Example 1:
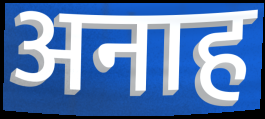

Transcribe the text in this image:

अनाह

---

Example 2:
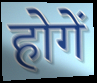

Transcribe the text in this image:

होगें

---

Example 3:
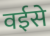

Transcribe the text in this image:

वईसे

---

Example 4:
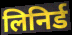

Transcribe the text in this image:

लिनिर्ड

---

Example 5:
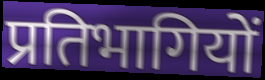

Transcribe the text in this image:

प्रतिभागियों